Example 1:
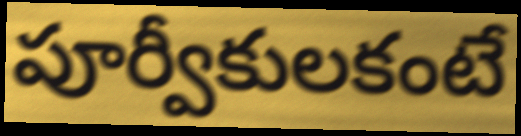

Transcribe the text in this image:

పూర్వీకులకంటే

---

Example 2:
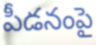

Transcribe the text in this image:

పీడనంపై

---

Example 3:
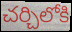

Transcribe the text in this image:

చర్చిలోకి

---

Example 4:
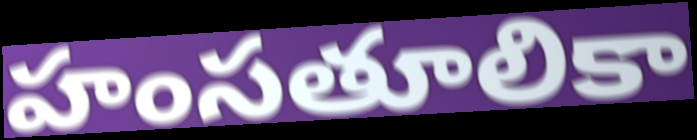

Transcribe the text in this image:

హంసతూలికా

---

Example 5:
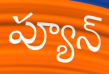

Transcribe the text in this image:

ప్యూన్